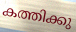
കത്തിക്കു